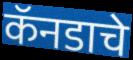
कॅनडाचे